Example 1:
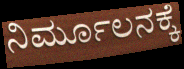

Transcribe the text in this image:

ನಿರ್ಮೂಲನಕ್ಕೆ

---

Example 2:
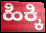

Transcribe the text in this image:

ಹಿಕ್ಕಿ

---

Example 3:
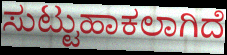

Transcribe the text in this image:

ಸುಟ್ಟುಹಾಕಲಾಗಿದೆ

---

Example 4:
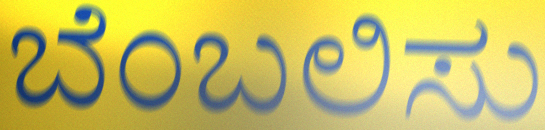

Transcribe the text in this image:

ಬೆಂಬಲಿಸು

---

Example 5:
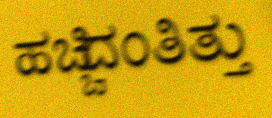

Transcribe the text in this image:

ಹಚ್ಚಿದಂತಿತ್ತು